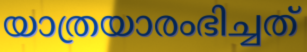
യാത്രയാരംഭിച്ചത്